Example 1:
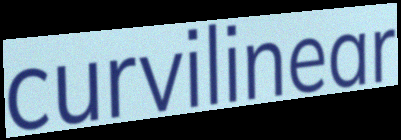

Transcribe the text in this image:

curvilinear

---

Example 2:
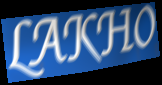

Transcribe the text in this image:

LAKHO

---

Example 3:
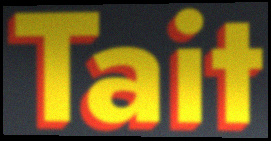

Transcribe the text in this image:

Tait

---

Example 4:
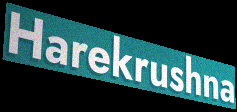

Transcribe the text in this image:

Harekrushna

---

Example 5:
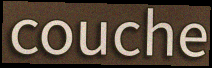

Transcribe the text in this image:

couche